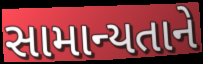
સામાન્યતાને